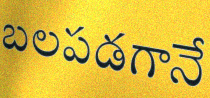
బలపడగానే